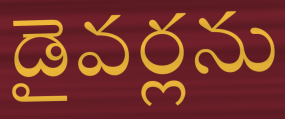
డైవర్లను